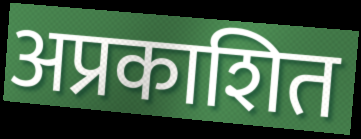
अप्रकाशित